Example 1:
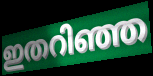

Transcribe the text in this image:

ഇതറിഞ്ഞ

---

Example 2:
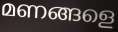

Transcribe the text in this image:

മണങ്ങളെ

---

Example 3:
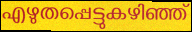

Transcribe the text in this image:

എഴുതപ്പെട്ടുകഴിഞ്ഞ്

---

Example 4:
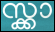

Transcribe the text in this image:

സ്ക്കാ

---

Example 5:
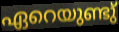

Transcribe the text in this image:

ഏറെയുണ്ടു്